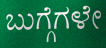
ಬುಗ್ಗೆಗಳೇ